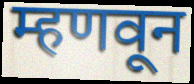
म्हणवून